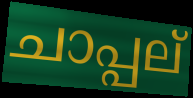
ചാപ്പല്